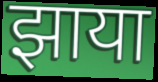
झाया